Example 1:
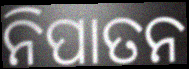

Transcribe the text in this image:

ନିପାତନ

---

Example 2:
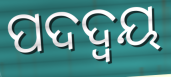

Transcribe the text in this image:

ପଦଦ୍ଵୟ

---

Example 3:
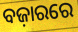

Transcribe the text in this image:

ବଜ଼ାରରେ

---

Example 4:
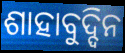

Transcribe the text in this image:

ଶାହାବୁଦ୍ଦିନ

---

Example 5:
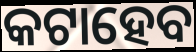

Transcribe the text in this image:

କଟାହେବ